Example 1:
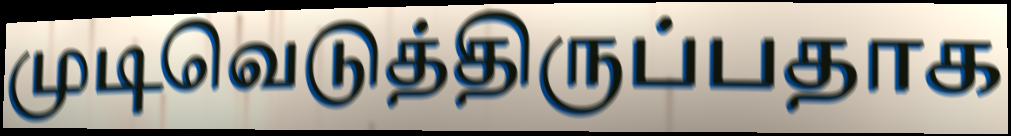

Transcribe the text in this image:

முடிவெடுத்திருப்பதாக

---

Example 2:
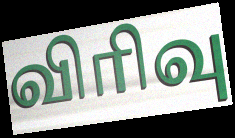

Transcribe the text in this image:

விரிவு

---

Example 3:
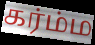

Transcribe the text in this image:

கர்ம்ம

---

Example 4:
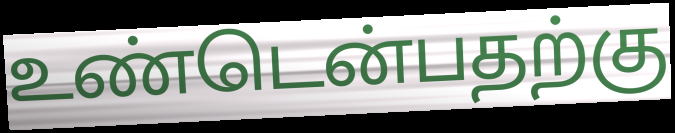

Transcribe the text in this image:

உண்டென்பதற்கு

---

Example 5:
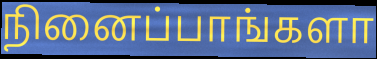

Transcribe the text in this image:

நினைப்பாங்களா